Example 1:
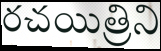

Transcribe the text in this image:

రచయిత్రిని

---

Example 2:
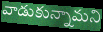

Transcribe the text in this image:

వాడుకున్నామని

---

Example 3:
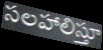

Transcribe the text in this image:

సలహాలిస్తూ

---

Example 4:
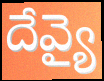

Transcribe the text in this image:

దేవ్యై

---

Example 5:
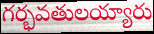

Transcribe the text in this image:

గర్భవతులయ్యారు